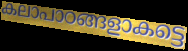
കലാപാഠങ്ങളാകട്ടെ